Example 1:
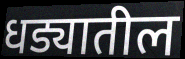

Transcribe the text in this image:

धड्यातील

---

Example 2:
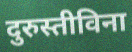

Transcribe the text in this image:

दुरुस्तीविना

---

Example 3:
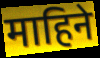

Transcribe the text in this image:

माहिने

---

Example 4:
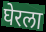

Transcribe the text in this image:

घेरला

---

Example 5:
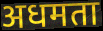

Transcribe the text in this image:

अधमता